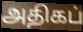
அதிகப்